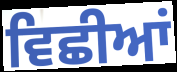
ਵਿਛੀਆਂ